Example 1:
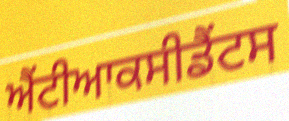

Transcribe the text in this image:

ਐਂਟੀਆਕਸੀਡੈਂਟਸ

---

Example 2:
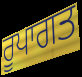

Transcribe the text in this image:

ਰੂਪਾਗਤ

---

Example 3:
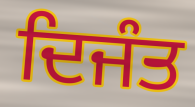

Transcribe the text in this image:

ਦਿਜੰਤ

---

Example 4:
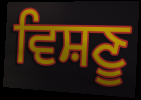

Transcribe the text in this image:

ਵਿਸ਼ਣੂ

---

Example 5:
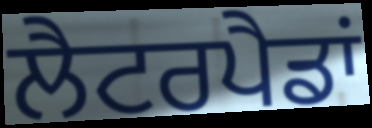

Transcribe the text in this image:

ਲੈਟਰਪੈਡਾਂ